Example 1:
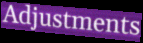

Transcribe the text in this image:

Adjustments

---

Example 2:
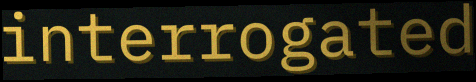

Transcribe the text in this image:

interrogated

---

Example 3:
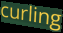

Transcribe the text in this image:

curling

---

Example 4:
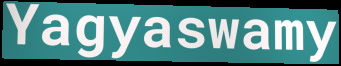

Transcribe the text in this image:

Yagyaswamy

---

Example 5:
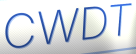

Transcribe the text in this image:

CWDT